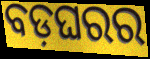
ବଡ଼ଘରର